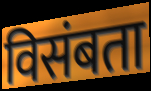
विसंबता